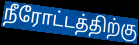
நீரோட்டத்திற்கு